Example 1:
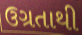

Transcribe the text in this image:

ઉગ્રતાથી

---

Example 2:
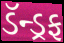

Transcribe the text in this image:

ડૅન્ડ્રફ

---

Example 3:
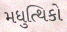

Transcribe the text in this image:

મધુત્થિકો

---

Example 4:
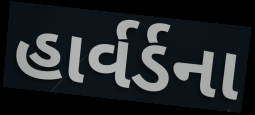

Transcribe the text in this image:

હાર્વર્ડના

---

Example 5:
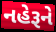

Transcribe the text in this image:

નહેરૂને